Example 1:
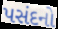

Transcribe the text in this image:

પસંદનો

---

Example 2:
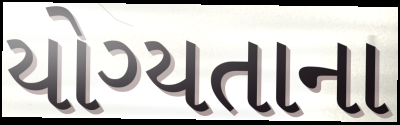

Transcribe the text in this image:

યોગ્યતાના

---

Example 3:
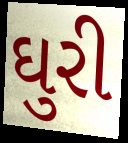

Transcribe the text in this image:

ઘુરી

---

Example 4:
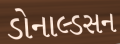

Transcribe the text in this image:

ડોનાલ્ડસન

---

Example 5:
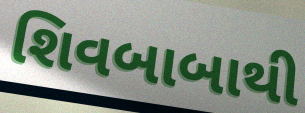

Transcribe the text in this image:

શિવબાબાથી